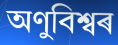
অণুবিশ্বৰ